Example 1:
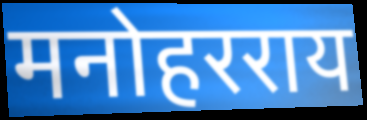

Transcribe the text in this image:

मनोहरराय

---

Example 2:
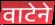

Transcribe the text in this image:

वाटेने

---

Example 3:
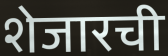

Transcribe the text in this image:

शेजारची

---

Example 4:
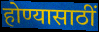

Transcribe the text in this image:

होण्यासाठीं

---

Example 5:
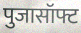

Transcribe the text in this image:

पुजासॉफ्ट